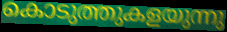
കൊടുത്തുകളയുന്നു